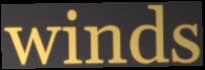
winds